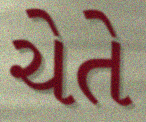
ચેતે